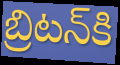
బ్రిటన్‌కి